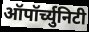
ऑपॉर्च्युनिटी